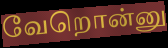
வேறொன்னு